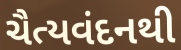
ચૈત્યવંદનથી